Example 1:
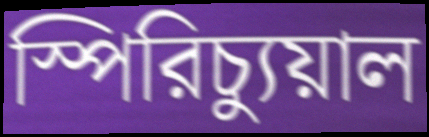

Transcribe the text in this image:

স্পিরিচ্যুয়াল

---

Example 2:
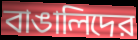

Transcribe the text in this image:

বাঙালিদের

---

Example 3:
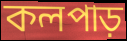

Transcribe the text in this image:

কলপাড়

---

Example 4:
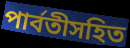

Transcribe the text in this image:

পার্বতীসহিত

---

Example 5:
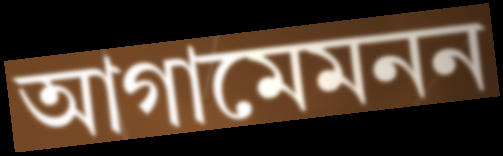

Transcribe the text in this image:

আগামেমনন